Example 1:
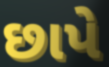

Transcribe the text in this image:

છાપે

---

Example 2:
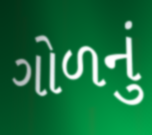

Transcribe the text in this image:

ગોળનું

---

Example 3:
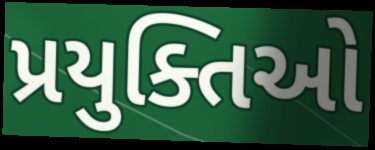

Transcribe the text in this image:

પ્રયુક્તિઓ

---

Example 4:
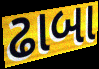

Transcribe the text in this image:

ઢાબા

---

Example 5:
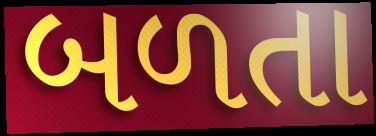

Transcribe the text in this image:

બળતા